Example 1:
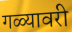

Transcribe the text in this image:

गळ्यावरी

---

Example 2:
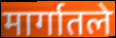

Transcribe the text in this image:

मार्गातले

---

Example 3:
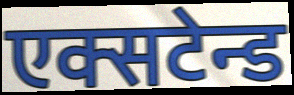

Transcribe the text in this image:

एक्सटेन्ड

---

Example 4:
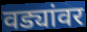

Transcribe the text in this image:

वड्यांवर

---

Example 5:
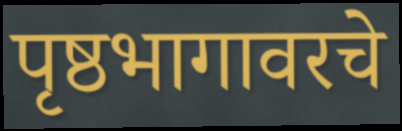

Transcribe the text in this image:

पृष्ठभागावरचे